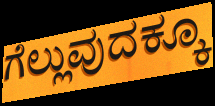
ಗೆಲ್ಲುವುದಕ್ಕೂ